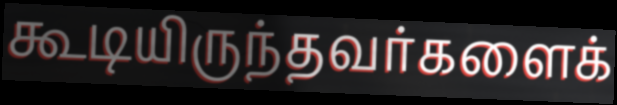
கூடியிருந்தவர்களைக்